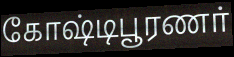
கோஷ்டிபூரணர்